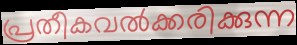
പ്രതീകവൽക്കരിക്കുന്ന